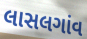
લાસલગાંવ